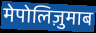
मेपोलिज़ुमाब